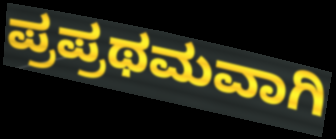
ಪ್ರಪ್ರಥಮವಾಗಿ